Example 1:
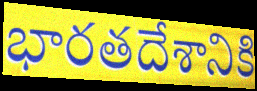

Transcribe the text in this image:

భారతదేశానికి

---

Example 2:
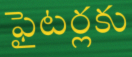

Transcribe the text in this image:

ఫైటర్లకు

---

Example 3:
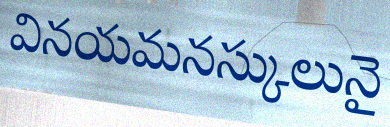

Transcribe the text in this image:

వినయమనస్కులునై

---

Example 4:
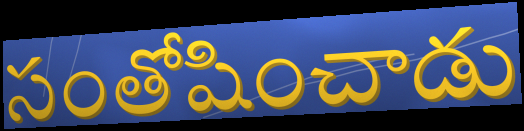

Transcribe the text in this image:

సంతోషించాడు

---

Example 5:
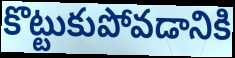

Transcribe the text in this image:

కొట్టుకుపోవడానికి